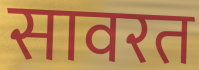
सावरत